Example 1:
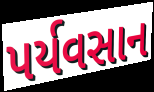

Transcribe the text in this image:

પર્યવસાન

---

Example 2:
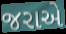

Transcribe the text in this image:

જરાએ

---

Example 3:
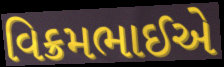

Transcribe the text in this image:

વિક્રમભાઈએ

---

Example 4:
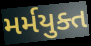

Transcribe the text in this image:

મર્મયુક્ત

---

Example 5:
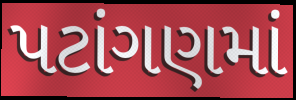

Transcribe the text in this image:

પટાંગણમાં